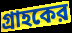
গ্রাহকের